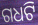
ଗଧଟି